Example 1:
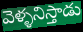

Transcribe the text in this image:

వెళ్ళనిస్తాడు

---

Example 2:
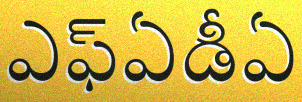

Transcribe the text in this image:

ఎఫ్ఏడీఏ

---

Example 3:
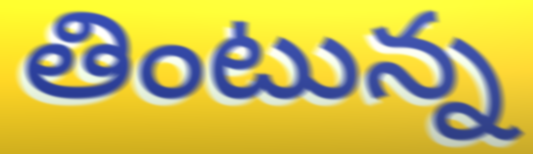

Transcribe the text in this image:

తింటున్న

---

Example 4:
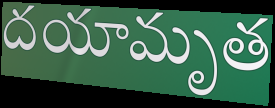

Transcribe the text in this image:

దయామృత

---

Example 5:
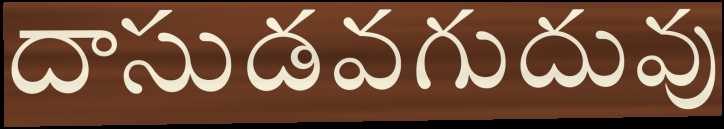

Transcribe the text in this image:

దాసుడవగుదువు